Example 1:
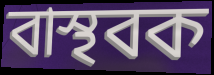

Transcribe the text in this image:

বাস্থবক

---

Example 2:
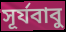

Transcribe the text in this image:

সূর্যবাবু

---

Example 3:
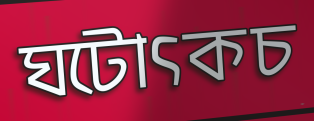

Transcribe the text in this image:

ঘটোৎকচ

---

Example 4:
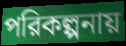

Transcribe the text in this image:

পরিকল্পনায়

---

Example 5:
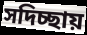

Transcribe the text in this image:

সদিচ্ছায়